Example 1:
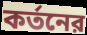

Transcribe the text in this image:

কর্তনের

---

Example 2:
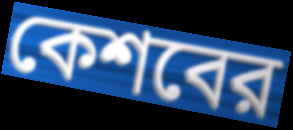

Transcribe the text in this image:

কেশবের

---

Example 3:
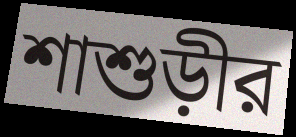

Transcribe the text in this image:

শাশুড়ীর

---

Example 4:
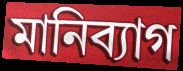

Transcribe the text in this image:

মানিব্যাগ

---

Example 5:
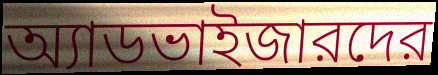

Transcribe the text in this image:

অ্যাডভাইজারদের